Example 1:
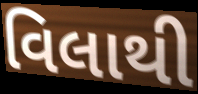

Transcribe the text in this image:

વિલાથી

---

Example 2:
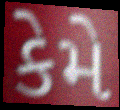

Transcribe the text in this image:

કેમે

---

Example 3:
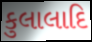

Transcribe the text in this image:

કુલાલાદિ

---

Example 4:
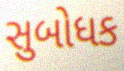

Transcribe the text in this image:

સુબોધક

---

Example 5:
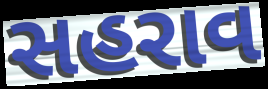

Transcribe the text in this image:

સહરાવ